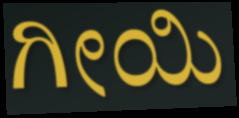
ಗೀಯಿ